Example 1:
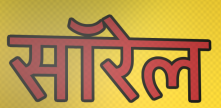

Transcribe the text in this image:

सॉरेल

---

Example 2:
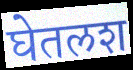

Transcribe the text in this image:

घेतलश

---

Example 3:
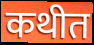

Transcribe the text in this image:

कथीत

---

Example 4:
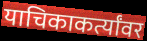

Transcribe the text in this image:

याचिकाकर्त्यांवर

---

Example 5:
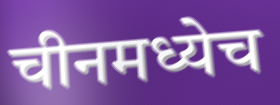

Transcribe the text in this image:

चीनमध्येच